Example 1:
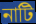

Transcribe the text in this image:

নাটি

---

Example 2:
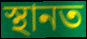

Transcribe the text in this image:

স্থানত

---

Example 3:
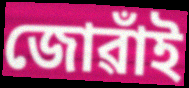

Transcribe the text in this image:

জোৱাঁই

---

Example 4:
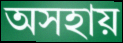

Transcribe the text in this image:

অসহায়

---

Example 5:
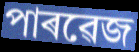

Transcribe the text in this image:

পাৰৱেজ